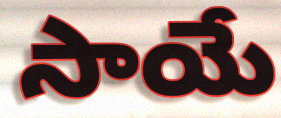
సాయే